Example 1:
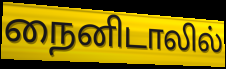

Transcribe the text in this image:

நைனிடாலில்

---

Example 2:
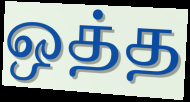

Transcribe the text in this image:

ஒத்த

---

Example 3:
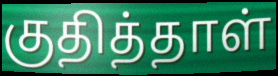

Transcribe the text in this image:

குதித்தாள்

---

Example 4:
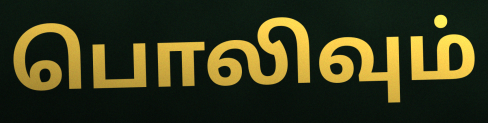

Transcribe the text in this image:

பொலிவும்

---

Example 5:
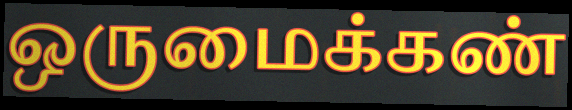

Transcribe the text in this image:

ஒருமைக்கண்